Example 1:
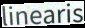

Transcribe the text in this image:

linearis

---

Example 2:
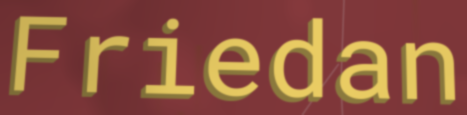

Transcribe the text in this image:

Friedan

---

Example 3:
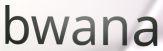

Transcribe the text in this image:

bwana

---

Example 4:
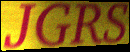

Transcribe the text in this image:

JGRS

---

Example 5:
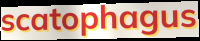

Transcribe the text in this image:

scatophagus